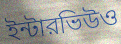
ইন্টারভিউও